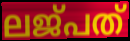
ലജ്പത്